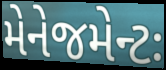
મેનેજમેન્ટઃ